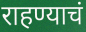
राहण्याचं